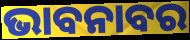
ଭାବନାବର